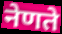
नेणते